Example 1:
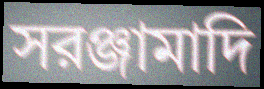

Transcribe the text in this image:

সরঞ্জামাদি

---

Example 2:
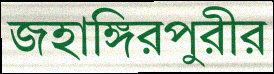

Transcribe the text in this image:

জহাঙ্গিরপুরীর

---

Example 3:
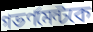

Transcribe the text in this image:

গভর্ণমেন্টকে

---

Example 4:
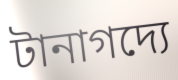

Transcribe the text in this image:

টানাগদ্যে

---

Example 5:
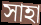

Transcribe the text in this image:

সাহা